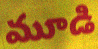
మూడి